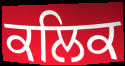
ਕਲਿਕ